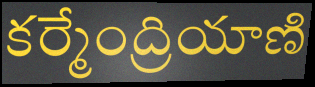
కర్మేంద్రియాణి